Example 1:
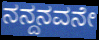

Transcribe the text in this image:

ನನ್ದನವನೇ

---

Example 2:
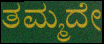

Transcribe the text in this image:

ತಮ್ಮದೇ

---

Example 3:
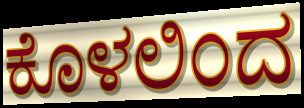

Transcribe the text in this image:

ಕೊಳಲಿಂದ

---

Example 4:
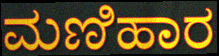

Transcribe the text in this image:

ಮಣಿಹಾರ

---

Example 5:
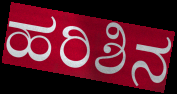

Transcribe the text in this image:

ಹರಿಶಿನ